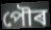
পৌৰ